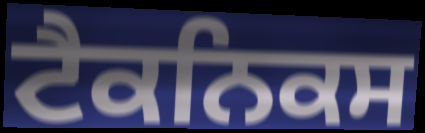
ਟੈਕਨਿਕਸ